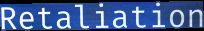
Retaliation